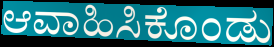
ಆವಾಹಿಸಿಕೊಂಡು